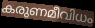
കരുണമീവിധം